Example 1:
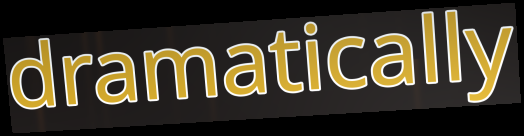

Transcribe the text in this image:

dramatically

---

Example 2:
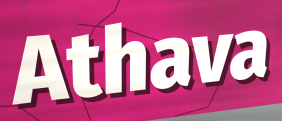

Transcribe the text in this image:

Athava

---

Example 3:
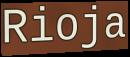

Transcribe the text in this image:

Rioja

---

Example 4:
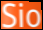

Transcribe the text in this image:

Sio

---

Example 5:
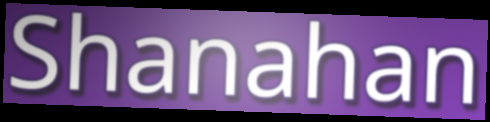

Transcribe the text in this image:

Shanahan